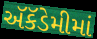
ઍકૅડેમીમાં